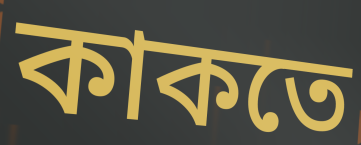
কাকতে